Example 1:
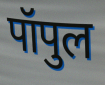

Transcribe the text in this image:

पॉपुल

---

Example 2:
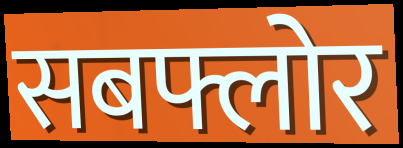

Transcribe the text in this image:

सबफ्लोर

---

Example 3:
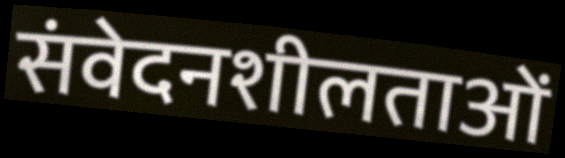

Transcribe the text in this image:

संवेदनशीलताओं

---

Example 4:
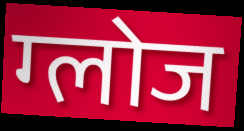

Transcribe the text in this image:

ग्लोज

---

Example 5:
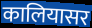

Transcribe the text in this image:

कालियासर